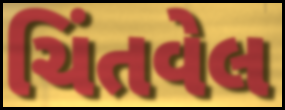
ચિંતવેલ